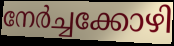
നേർച്ചക്കോഴി